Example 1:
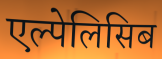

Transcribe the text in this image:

एल्पेलिसिब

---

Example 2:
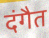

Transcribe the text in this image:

दंगैत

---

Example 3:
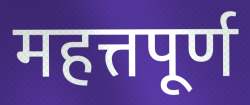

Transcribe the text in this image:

महत्तपूर्ण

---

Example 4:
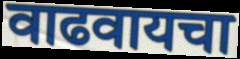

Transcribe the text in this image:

वाढवायचा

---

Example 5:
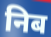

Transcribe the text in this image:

निब